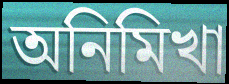
অনিমিখা